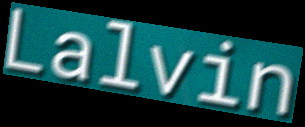
Lalvin